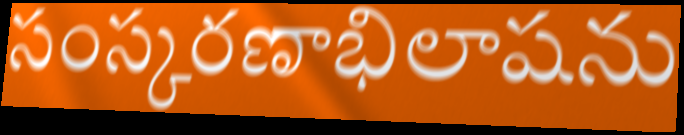
సంస్కరణాభిలాషను